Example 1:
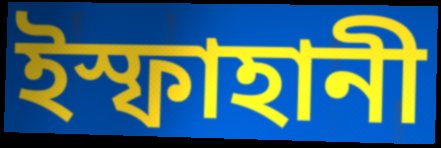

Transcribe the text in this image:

ইস্ফাহানী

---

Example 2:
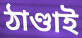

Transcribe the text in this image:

ঠাণ্ডাই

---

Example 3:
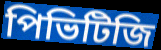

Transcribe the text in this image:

পিভিটিজি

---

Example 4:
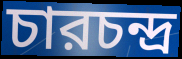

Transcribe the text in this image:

চারচন্দ্র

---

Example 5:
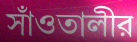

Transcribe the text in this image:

সাঁওতালীর